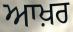
ਆਖ਼ਰ